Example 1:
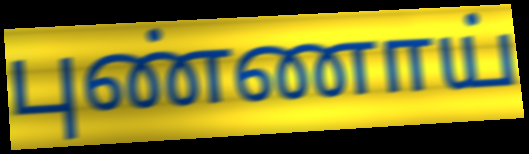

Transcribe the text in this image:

புண்ணாய்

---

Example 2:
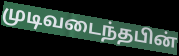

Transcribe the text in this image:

முடிவடைந்தபின்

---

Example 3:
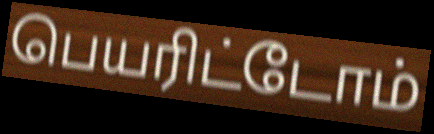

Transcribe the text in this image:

பெயரிட்டோம்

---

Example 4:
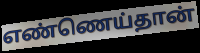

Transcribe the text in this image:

எண்ணெய்தான்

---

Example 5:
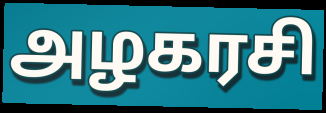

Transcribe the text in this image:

அழகரசி